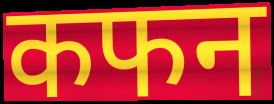
कफन